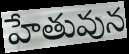
హేతువున